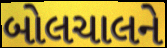
બોલચાલને